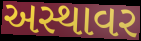
અસ્થાવર